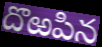
దొఱపిన